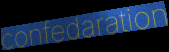
confedaration